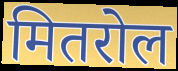
मितरोल